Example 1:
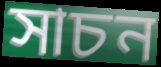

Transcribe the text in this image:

সাচন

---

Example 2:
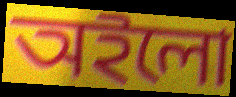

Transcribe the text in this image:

অইলো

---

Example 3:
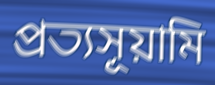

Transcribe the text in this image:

প্রত্যসূয়ামি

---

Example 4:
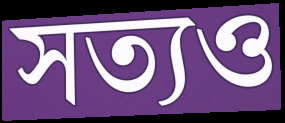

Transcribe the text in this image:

সত্যও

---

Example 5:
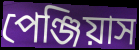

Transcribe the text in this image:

পেঞ্জিয়াস